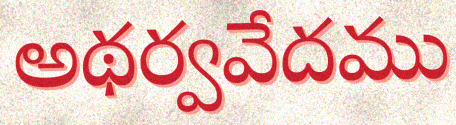
అథర్వవేదము